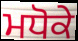
ਮਧੋਕੇ